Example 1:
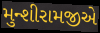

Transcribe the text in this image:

મુન્શીરામજીએ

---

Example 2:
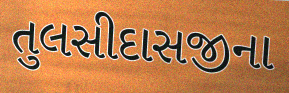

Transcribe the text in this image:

તુલસીદાસજીના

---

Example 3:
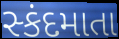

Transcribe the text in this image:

સ્કંદમાતા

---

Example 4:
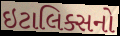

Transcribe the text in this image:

ઇટાલિક્સનો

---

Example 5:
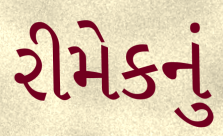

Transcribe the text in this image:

રીમેકનું